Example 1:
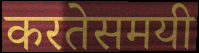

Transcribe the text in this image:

करतेसमयी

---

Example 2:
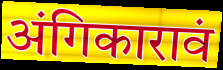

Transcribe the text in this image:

अंगिकारावं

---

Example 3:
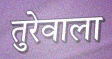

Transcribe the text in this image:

तुरेवाला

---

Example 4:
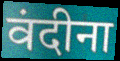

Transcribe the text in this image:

वंदीना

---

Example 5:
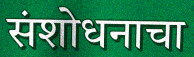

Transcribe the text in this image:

संशोधनाचा